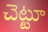
చెట్టూ